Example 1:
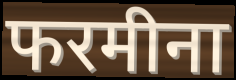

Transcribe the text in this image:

फरमीना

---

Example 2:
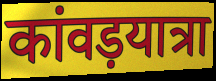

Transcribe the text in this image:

कांवड़यात्रा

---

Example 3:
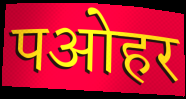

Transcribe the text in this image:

पओहर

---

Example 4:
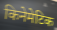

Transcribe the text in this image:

किनेमेटिक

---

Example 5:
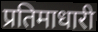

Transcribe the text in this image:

प्रतिमाधारी